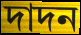
দাদন